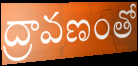
ద్రావణంతో